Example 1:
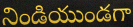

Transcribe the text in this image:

నిండియుండగా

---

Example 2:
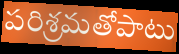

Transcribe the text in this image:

పరిశ్రమతోపాటు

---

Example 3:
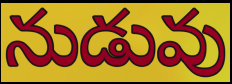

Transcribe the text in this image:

నుడువు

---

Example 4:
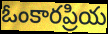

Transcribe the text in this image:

ఓంకారప్రియ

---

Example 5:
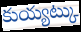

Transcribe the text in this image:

కుయ్యట్కు